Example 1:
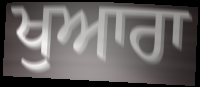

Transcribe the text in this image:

ਖੁਆਰਾ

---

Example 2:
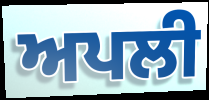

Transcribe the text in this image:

ਅਪਲੀ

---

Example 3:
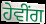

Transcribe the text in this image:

ਹੇਵੀੰਗ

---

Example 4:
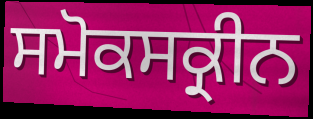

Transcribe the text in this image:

ਸਮੋਕਸਕ੍ਰੀਨ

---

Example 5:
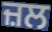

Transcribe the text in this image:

ਜ਼ਲ